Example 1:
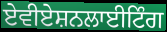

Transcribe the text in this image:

ਏਵੀਏਸ਼ਨਲਾਈਟਿੰਗ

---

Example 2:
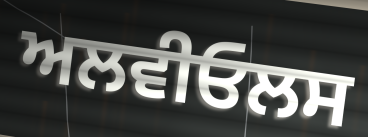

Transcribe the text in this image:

ਅਲਵੀਓਲਸ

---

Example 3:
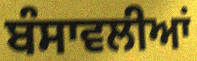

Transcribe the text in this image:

ਬੰਸਾਵਲੀਆਂ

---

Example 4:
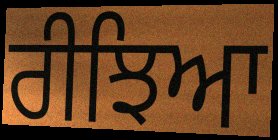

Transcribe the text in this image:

ਰੀਝਿਆ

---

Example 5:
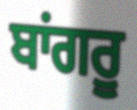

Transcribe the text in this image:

ਬਾਂਗਰੂ